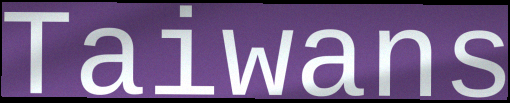
Taiwans